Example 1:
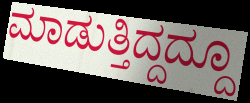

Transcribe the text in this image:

ಮಾಡುತ್ತಿದ್ದದ್ದೂ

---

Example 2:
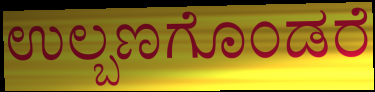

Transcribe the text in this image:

ಉಲ್ಬಣಗೊಂಡರೆ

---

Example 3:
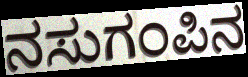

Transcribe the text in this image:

ನಸುಗಂಪಿನ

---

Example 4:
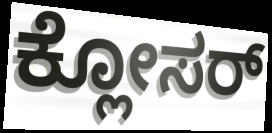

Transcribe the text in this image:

ಕ್ಲೋಸರ್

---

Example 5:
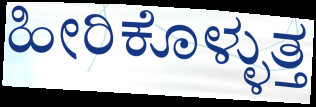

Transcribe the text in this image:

ಹೀರಿಕೊಳ್ಳುತ್ತ